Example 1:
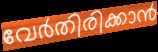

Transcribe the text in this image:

വേർതിരിക്കാൻ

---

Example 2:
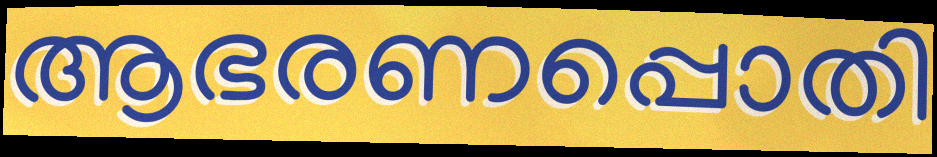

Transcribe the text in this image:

ആഭരണപ്പൊതി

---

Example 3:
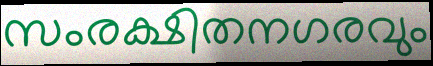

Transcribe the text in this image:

സംരക്ഷിതനഗരവും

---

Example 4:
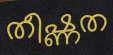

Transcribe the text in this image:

തീഷ്ണത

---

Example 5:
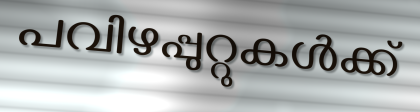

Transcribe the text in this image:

പവിഴപ്പുറ്റുകൾക്ക്